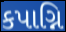
કપાગ્નિ